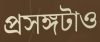
প্রসঙ্গটাও